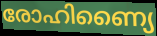
രോഹിണ്യൈ